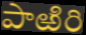
పాఱిరి